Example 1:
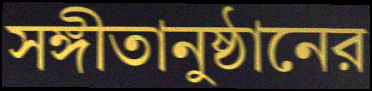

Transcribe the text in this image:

সঙ্গীতানুষ্ঠানের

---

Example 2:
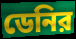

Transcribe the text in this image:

ডেনির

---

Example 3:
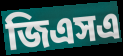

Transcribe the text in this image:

জিএসএ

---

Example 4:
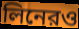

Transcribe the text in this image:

লিনেরও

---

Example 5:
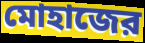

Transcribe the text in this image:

মোহাজের